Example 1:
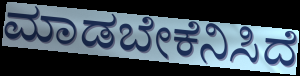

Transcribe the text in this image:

ಮಾಡಬೇಕೆನಿಸಿದೆ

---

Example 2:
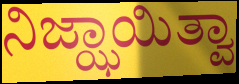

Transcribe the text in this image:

ನಿಜ್ಝಾಯಿತ್ವಾ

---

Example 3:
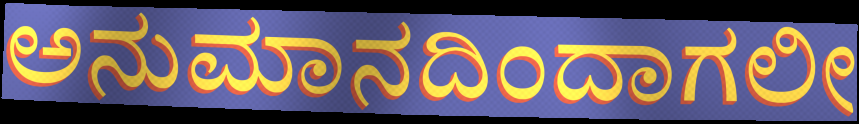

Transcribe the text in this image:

ಅನುಮಾನದಿಂದಾಗಲೀ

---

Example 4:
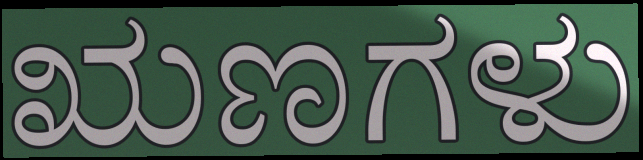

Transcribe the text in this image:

ಋಣಗಳು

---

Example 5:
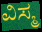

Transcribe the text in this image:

ವಿಸ್ಮ